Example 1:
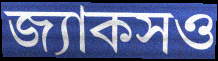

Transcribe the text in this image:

জ্যাকসও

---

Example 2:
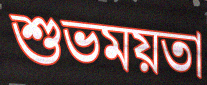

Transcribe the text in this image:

শুভময়তা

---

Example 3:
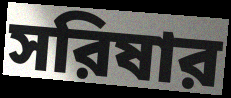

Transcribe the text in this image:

সরিষার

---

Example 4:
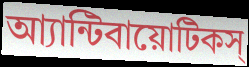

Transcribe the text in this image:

আ্যান্টিবায়োটিকস্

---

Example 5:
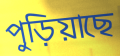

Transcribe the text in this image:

পুড়িয়াছে